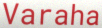
Varaha